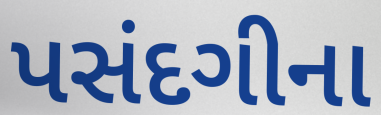
પસંદગીના